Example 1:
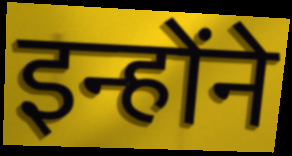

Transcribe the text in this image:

इन्‍होंने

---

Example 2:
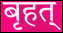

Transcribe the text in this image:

बृहत्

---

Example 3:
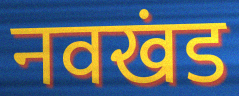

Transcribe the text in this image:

नवखंड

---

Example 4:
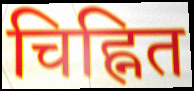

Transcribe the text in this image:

चिह्नित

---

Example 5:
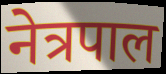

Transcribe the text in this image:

नेत्रपाल